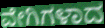
ವೇಗಿಗಳಾದ